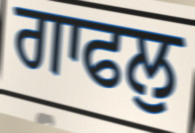
ਗਾਫਲੁ